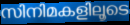
സിനിമകളിലൂടെ